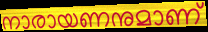
നാരായണനുമാണ്